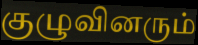
குழுவினரும்